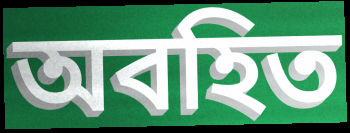
অবহিত